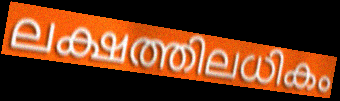
ലക്ഷത്തിലധികം